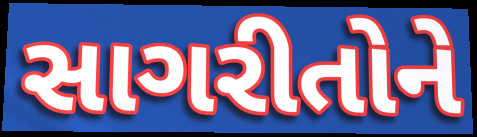
સાગરીતોને